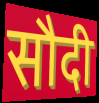
सौदी